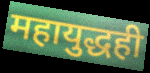
महायुद्धही